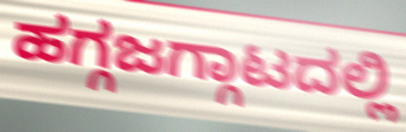
ಹಗ್ಗಜಗ್ಗಾಟದಲ್ಲಿ